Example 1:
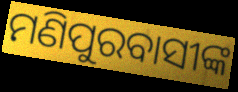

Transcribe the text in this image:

ମଣିପୁରବାସୀଙ୍କ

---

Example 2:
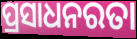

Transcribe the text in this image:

ପ୍ରସାଧନରତା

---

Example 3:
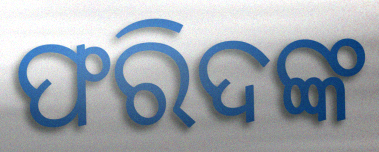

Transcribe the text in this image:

ଫରିଦଙ୍କ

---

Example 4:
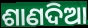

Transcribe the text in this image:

ଶାଣଦିଆ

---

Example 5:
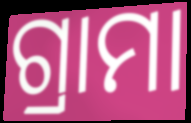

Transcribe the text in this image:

ଗ୍ରାମା